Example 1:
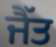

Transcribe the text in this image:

ਜੈੱਤ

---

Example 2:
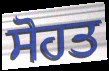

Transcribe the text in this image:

ਸੋਹਤ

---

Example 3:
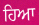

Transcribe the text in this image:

ਹਿਆ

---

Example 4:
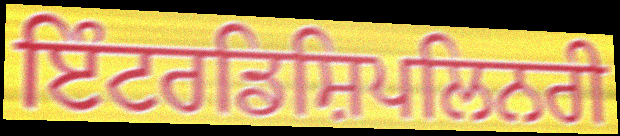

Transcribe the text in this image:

ਇੰਟਰਡਿਸ਼ਿਪਲਿਨਰੀ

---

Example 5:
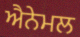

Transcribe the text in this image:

ਐਨੇਮਲ